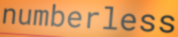
numberless